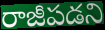
రాజీపడని